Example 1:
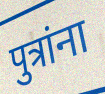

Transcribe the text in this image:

पुत्रांना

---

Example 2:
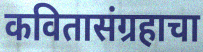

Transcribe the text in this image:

कवितासंग्रहाचा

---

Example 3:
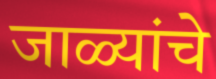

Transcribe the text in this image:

जाळ्यांचे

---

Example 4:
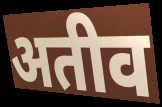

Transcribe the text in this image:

अतीव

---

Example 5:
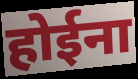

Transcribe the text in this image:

होईना